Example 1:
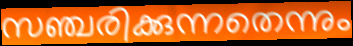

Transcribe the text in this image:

സഞ്ചരിക്കുന്നതെന്നും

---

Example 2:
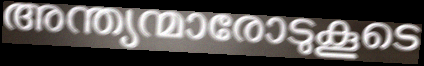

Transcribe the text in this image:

അന്ത്യന്മാരോടുകൂടെ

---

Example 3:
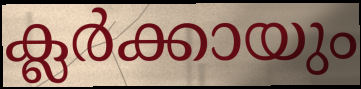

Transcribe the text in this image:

ക്ലർക്കായും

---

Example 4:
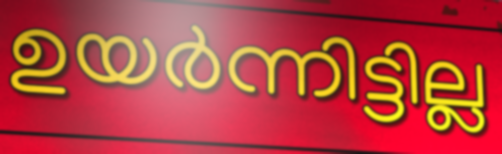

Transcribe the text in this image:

ഉയർന്നിട്ടില്ല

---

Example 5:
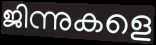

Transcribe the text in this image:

ജിന്നുകളെ